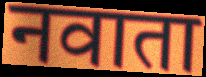
नवाता